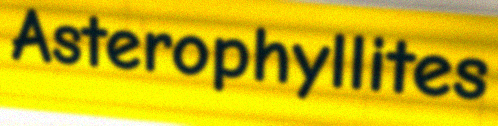
Asterophyllites